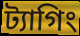
ট্যাগিং